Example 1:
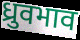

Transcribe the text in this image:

ध्रुवभाव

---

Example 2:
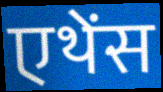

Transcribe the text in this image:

एथेंस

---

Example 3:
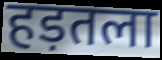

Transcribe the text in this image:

हड़तला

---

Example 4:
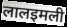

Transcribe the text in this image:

लालइमली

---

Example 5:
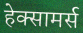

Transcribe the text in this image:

हेक्सामर्स